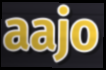
aajo